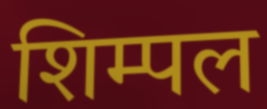
शिम्पल